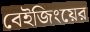
বেইজিংয়ের